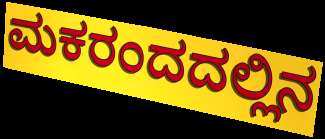
ಮಕರಂದದಲ್ಲಿನ